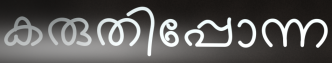
കരുതിപ്പോന്ന